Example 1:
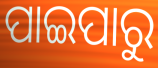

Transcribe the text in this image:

ପାଇପାରୁ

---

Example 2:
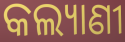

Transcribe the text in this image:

କଲ୍ୟାଣୀ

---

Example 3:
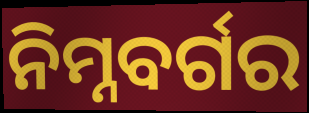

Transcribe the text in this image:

ନିମ୍ନବର୍ଗର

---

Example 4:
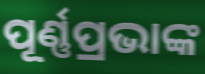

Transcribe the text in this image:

ପୂର୍ଣ୍ଣପ୍ରଭାଙ୍କ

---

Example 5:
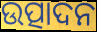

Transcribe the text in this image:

ଉତ୍ପାଦନ